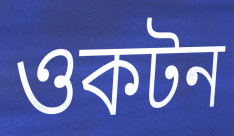
ওকটন